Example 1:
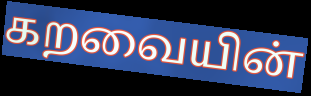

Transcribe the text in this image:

கறவையின்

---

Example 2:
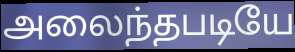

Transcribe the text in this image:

அலைந்தபடியே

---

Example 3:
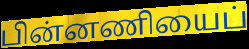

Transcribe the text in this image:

பின்னணியைப்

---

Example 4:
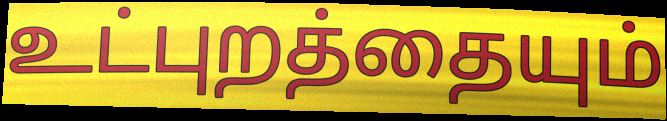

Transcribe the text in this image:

உட்புறத்தையும்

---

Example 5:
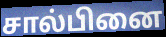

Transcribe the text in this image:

சால்பினை